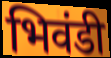
भिवंडी